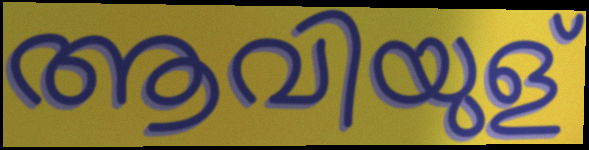
ആവിയുള്